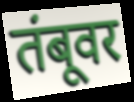
तंबूवर